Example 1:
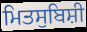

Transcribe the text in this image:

ਮਿਤਸੁਬਿਸ਼ੀ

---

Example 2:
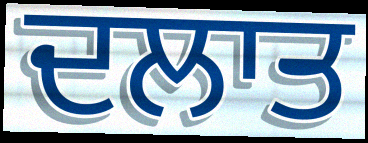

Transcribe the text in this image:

ਦਲਾਤ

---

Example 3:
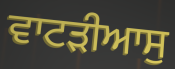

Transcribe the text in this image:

ਵਾਟੜੀਆਸੁ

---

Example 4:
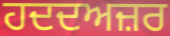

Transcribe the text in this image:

ਹਦਦਅਜ਼ਰ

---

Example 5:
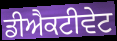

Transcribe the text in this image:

ਡੀਐਕਟੀਵੇਟ